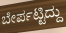
ಬೇರ್ಪಟ್ಟಿದ್ದು